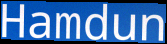
Hamdun